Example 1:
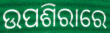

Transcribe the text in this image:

ଉପଶିରାରେ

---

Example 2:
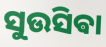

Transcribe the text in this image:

ସୁଉସିଵା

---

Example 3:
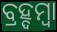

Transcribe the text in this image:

ବ୍ରହ୍ଦମ୍ବା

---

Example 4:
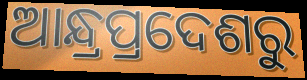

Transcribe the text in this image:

ଆନ୍ଧ୍ରପ୍ରଦେଶରୁ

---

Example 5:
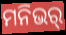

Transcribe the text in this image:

ମନିଭର୍